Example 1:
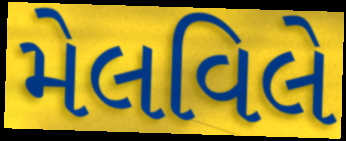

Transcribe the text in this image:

મેલવિલે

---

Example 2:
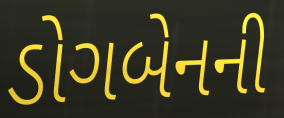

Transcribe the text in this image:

ડોગબેનની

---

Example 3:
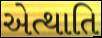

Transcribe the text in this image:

એત્થાતિ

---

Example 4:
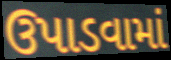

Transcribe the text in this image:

ઉપાડવામાં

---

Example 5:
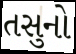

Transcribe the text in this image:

તસુનો